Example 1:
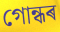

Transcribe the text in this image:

গোন্ধৰ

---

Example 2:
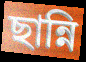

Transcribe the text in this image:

ছান্নি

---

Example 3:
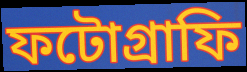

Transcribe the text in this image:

ফটোগ্ৰাফি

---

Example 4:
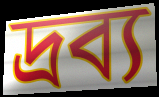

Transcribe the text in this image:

দ্ৰব্য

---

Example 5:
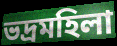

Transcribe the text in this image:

ভদ্ৰমহিলা